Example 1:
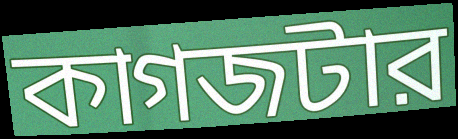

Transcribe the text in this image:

কাগজটার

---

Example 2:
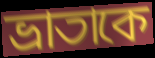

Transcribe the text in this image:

ভ্রাতাকে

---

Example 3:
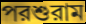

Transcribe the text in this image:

পরশুরাম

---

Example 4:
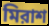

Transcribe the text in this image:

মিরাশ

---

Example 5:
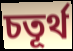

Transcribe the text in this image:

চতূর্থ